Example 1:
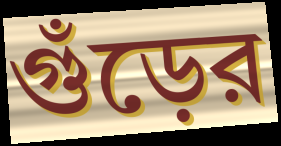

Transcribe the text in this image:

গুঁড়ের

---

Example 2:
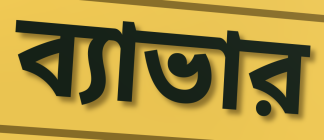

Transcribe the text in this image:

ব্যাভার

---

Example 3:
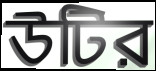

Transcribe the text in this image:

উটির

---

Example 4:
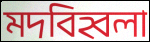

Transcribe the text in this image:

মদবিহ্বলা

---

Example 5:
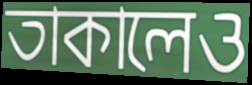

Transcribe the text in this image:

তাকালেও